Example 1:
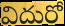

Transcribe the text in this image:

విదురో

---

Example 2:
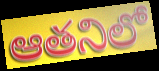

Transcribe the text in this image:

ఆతనిలో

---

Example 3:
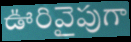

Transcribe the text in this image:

ఊరివైపుగా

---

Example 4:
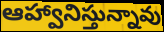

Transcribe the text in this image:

ఆహ్వానిస్తున్నావు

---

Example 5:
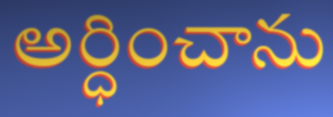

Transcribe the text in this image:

అర్ధించాను